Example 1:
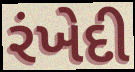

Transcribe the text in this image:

રંખેદી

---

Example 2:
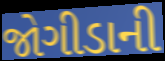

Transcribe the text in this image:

જોગીડાની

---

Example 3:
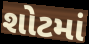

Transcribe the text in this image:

શોટમાં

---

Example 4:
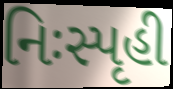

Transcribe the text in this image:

નિઃસ્પૃહી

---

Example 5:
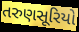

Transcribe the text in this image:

તરુણસૂરિયો